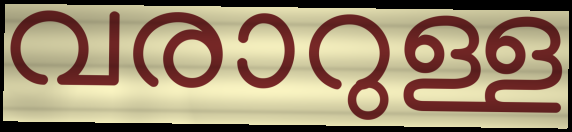
വരാറുള്ള